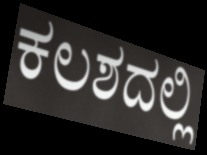
ಕಲಶದಲ್ಲಿ